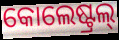
କୋଲେଷ୍ଟ୍ରଲ୍